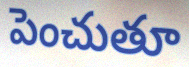
పెంచుతూ